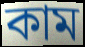
কাম